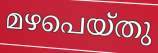
മഴപെയ്തു